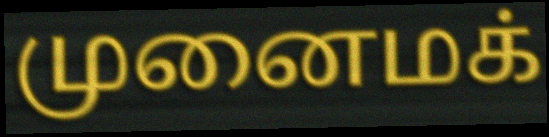
முனைமக்